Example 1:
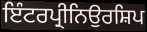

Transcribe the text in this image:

ਇੰਟਰਪ੍ਰੀਨਿਉਰਸ਼ਿਪ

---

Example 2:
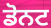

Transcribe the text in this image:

ਡੋਨਟ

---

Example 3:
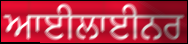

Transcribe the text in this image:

ਆਈਲਾਈਨਰ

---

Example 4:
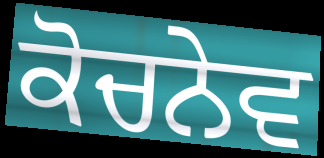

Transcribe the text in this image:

ਕੋਚਨੇਵ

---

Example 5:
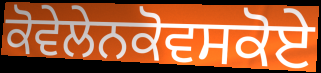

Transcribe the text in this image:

ਕੋਵੇਲੇਨਕੋਵਸਕੋਏ